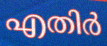
എതിർ